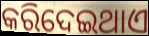
କରିଦେଇଥାଏ